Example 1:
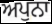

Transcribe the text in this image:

ਅਪੁਨਾ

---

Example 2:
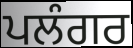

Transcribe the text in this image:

ਪਲੰਗਰ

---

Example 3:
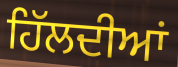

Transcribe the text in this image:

ਹਿੱਲਦੀਆਂ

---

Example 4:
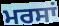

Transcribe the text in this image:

ਮਰਸਾਂ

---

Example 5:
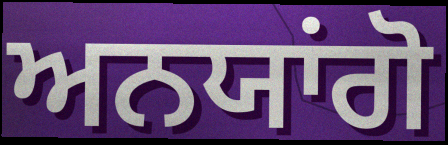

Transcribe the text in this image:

ਅਨਯਾਂਗੋ